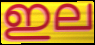
ഇല